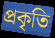
প্ৰকৃতি